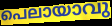
പെലായാവു